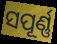
ସପୂର୍ଣ୍ଣ